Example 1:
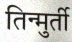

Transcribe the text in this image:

तिन्मुर्ती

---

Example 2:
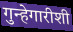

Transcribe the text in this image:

गुन्हेगारीशी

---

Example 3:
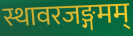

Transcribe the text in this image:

स्थावरजङ्गमम्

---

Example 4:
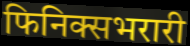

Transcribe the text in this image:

फिनिक्सभरारी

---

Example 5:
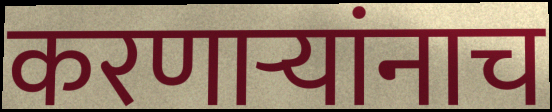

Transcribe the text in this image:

करणार्‍यांनाच